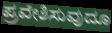
ಪ್ರವೇಶಿಸುವುದೂ